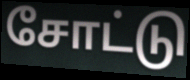
சோட்டு